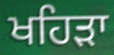
ਖਹਿਡ਼ਾ